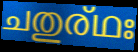
ചതുര്ഥഃ